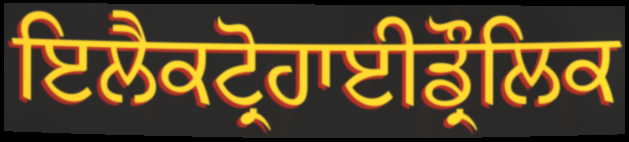
ਇਲੈਕਟ੍ਰੋਹਾਈਡ੍ਰੌਲਿਕ